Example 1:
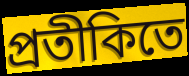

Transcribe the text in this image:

প্রতীকিতে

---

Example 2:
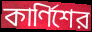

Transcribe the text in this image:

কার্ণিশের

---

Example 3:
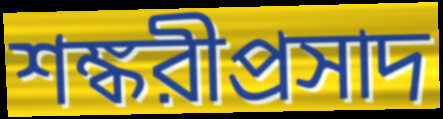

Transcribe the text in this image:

শঙ্করীপ্রসাদ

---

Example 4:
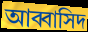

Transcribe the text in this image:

আব্বাসিদ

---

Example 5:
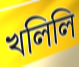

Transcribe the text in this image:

খলিলি